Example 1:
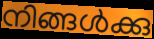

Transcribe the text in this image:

നിങ്ങൾക്കു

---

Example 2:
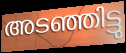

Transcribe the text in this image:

അടഞ്ഞിട്ടു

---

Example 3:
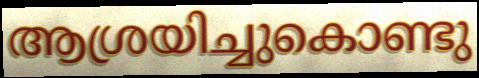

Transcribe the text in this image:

ആശ്രയിച്ചുകൊണ്ടു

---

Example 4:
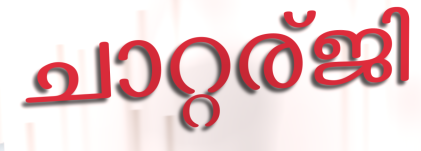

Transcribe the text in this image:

ചാറ്റര്ജി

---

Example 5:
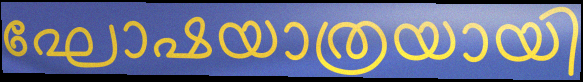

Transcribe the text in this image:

ഘോഷയാത്രയായി